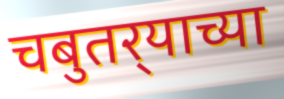
चबुतर्‍याच्या